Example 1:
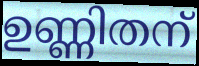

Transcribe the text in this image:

ഉണ്ണിതന്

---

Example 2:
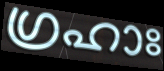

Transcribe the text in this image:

ഗ്രഹാഃ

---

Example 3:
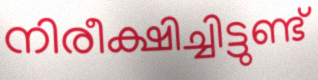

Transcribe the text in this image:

നിരീക്ഷിച്ചിട്ടുണ്ട്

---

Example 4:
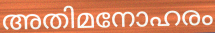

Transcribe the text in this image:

അതിമനോഹരം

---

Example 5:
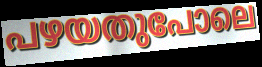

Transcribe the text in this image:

പഴയതുപോലെ